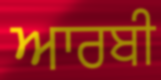
ਆਰਬੀ